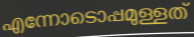
എന്നോടൊപ്പമുള്ളത്